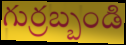
గుర్రబ్బండి